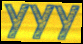
yyy